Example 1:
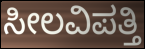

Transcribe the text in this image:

ಸೀಲವಿಪತ್ತಿ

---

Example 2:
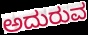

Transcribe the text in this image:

ಅದುರುವ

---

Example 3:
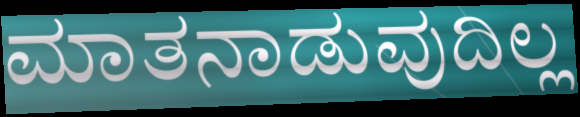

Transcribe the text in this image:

ಮಾತನಾಡುವುದಿಲ್ಲ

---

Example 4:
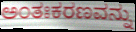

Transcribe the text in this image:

ಅಂತಃಕರಣವನ್ನು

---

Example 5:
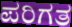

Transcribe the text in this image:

ಪರಿಗತ